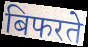
बिफरते